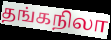
தங்கநிலா